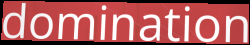
domination